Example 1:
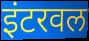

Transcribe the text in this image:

इंटरवल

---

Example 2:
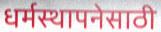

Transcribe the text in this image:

धर्मस्थापनेसाठी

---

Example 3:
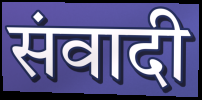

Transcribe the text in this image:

संवादी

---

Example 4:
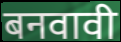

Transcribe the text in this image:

बनवावी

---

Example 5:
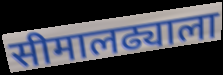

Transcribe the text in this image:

सीमालढ्याला